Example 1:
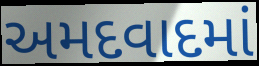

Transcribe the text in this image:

અમદવાદમાં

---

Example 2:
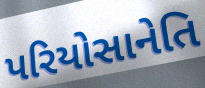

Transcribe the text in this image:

પરિયોસાનેતિ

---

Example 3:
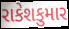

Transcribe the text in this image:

રાકેશકુમાર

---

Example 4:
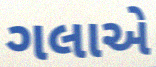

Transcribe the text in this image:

ગલાએ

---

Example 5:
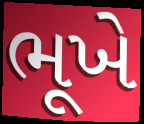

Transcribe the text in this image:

ભૂખે